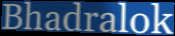
Bhadralok